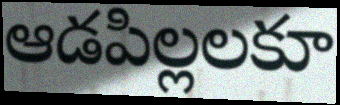
ఆడపిల్లలకూ